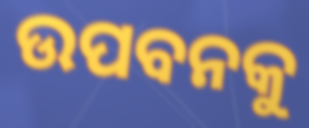
ଉପବନକୁ